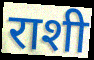
राशी